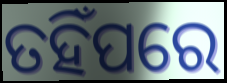
ତହିଁପରେ